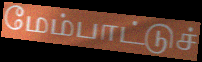
மேம்பாட்டுச்